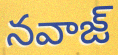
నవాజ్